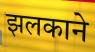
झलकाने